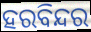
ହରବିନ୍ଦର